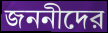
জননীদের